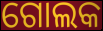
ଗୋଲକ